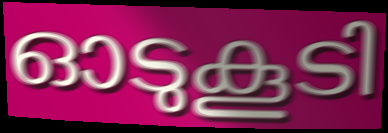
ഓടുകൂടി